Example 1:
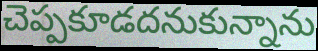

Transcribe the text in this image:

చెప్పకూడదనుకున్నాను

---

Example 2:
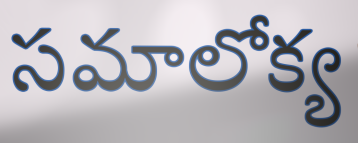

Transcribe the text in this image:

సమాలోక్య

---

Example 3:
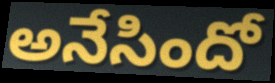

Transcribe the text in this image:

అనేసిందో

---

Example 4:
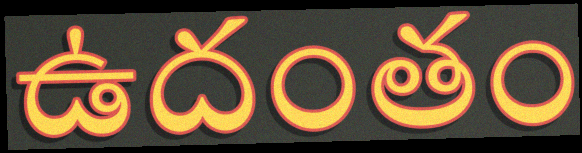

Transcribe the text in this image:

ఉదంతం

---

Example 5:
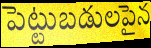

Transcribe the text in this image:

పెట్టుబడులపైన